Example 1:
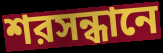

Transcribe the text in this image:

শরসন্ধানে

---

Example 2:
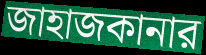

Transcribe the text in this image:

জাহাজকানার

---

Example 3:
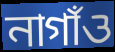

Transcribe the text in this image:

নাগাঁও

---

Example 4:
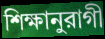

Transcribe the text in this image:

শিক্ষানুরাগী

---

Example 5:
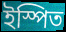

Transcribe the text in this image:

ইস্পিত